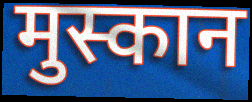
मुस्कान